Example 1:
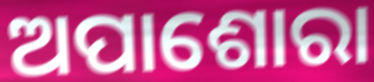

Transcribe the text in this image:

ଅପାଶୋରା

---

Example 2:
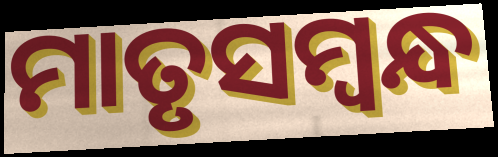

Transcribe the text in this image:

ମାତୃସମ୍ବନ୍ଧ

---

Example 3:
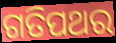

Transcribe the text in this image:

ଗତିପଥର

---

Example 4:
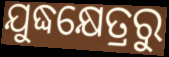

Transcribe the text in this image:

ଯୁଦ୍ଧକ୍ଷେତ୍ରରୁ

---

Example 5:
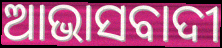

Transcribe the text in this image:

ଆଭାସବାଦୀ